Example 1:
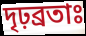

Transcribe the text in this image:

দৃঢ়ব্রতাঃ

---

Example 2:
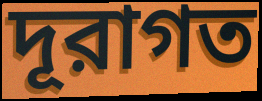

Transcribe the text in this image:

দূরাগত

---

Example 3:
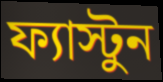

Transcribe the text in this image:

ফ্যাস্টুন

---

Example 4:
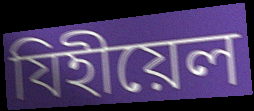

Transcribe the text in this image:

যিহীয়েল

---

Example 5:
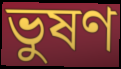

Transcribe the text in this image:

ভুষণ